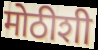
मोठीशी